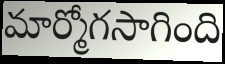
మార్మోగసాగింది